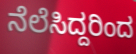
ನೆಲೆಸಿದ್ದರಿಂದ